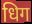
धिग